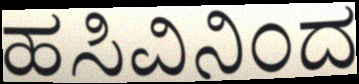
ಹಸಿವಿನಿಂದ